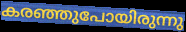
കരഞ്ഞുപോയിരുന്നു